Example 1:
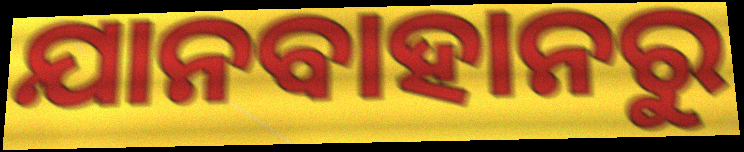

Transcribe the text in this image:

ଯାନବାହାନରୁ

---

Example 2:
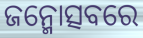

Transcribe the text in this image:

ଜନ୍ମୋତ୍ସବରେ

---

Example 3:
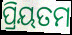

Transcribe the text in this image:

ପ୍ରିୟତମ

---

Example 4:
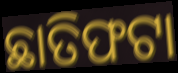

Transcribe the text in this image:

ଛାତିଫଟା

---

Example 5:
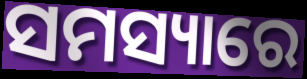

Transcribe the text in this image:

ସମସ୍ୟାରେ